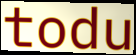
todu